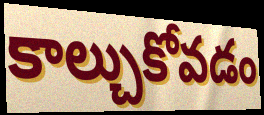
కాల్చుకోవడం